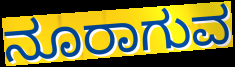
ನೂರಾಗುವ